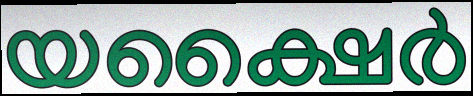
യക്ഷൈർ